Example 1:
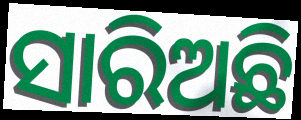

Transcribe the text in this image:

ସାରିଅଛି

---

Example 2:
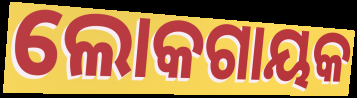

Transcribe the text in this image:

ଲୋକଗାୟକ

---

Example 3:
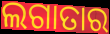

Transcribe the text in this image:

ଲଗାତାର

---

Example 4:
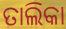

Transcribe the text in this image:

ତାଲିକା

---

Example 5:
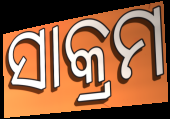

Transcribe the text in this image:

ସାକ୍ରମ